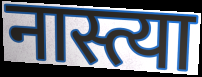
नास्त्या